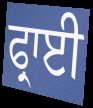
ਫ੍ਰਾਈ